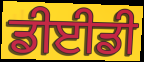
ਡੀਈਡੀ